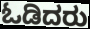
ಓಡಿದರು